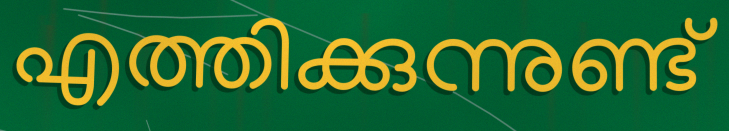
എത്തിക്കുന്നുണ്ട്